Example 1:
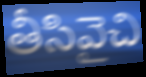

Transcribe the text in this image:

తీసివైచి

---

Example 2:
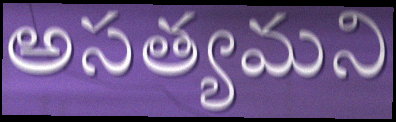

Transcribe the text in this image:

అసత్యమని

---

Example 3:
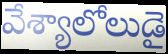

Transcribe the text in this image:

వేశ్యాలోలుడై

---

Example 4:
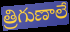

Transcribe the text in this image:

త్రిగుణాలే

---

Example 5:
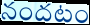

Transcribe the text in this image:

నందటం